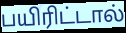
பயிரிட்டால்